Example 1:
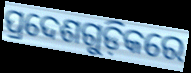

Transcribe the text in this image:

ପ୍ରଦେଶଗୁଡ଼ିକରେ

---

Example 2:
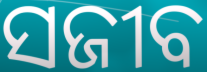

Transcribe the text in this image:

ସଜୀବ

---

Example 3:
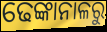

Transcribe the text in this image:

ଢେଙ୍କାନାଳରୁ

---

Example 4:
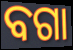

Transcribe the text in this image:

ବଗା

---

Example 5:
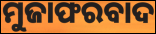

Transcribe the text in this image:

ମୁଜାଫରବାଦ